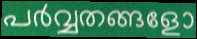
പർവ്വതങ്ങളോ